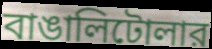
বাঙালিটোলার